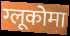
ग्‍लूकोमा